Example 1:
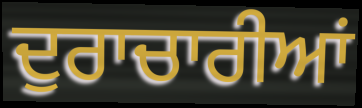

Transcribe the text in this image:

ਦੁਰਾਚਾਰੀਆਂ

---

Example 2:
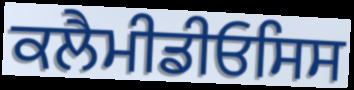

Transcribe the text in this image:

ਕਲੈਮੀਡੀਓਸਿਸ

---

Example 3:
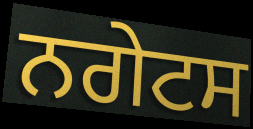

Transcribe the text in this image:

ਨਗੇਟਸ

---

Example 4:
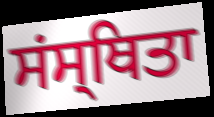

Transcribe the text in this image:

ਸਂਸ੍ਥਿਤਾ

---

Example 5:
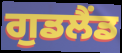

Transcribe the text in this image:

ਗੁਡਲੈਂਡ